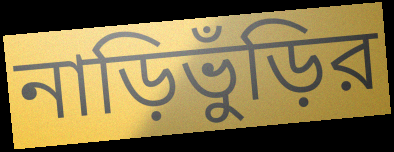
নাড়িভুঁড়ির